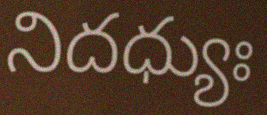
నిదధ్యుః